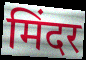
मिंदर